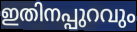
ഇതിനപ്പുറവും